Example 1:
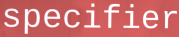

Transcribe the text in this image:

specifier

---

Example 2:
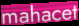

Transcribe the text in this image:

mahacet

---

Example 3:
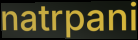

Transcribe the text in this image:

natrpani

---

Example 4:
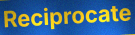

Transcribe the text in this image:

Reciprocate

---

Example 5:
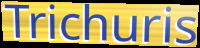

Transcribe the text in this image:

Trichuris